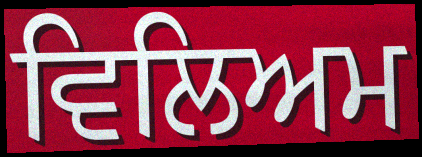
ਵਿਲਿਅਮ